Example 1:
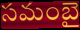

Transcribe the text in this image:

సమంబై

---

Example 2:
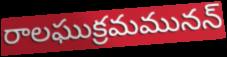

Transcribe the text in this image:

రాలఘుక్రమమునన్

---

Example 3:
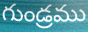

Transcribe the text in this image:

గుండ్రము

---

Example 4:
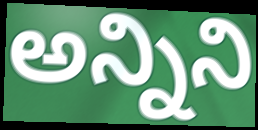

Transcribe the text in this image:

అన్నిని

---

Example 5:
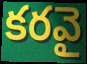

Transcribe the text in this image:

కరవై